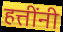
हत्तींनी